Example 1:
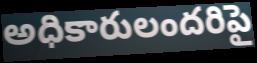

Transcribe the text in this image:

అధికారులందరిపై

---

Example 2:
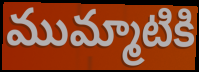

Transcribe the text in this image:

ముమ్మాటికి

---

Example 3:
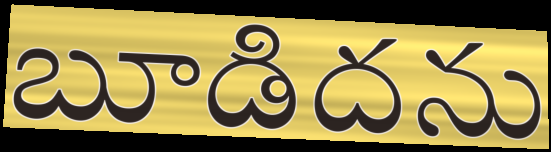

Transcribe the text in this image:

బూడిదను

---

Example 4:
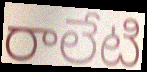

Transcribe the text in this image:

రాలేటి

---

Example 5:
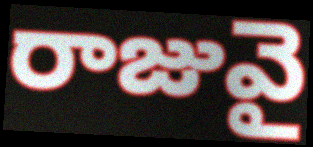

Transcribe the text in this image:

రాజువై